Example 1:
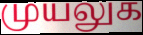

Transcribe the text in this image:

முயலுக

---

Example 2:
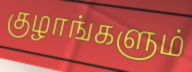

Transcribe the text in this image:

குழாங்களும்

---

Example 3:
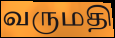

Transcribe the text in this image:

வருமதி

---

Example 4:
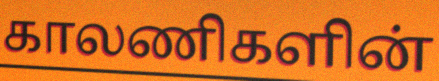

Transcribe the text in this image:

காலணிகளின்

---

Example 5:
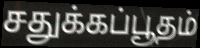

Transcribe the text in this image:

சதுக்கப்பூதம்